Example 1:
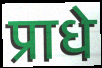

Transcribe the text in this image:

प्राधे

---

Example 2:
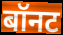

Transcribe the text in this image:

बॉनट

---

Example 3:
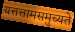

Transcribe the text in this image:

यत्तत्तामसमुच्यते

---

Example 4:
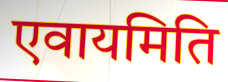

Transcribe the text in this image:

एवायमिति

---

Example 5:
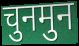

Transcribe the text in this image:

चुनमुन